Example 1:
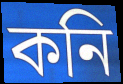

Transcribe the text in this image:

কনি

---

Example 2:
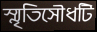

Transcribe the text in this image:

স্মৃতিসৌধটি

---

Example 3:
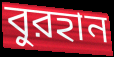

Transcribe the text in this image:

বুরহান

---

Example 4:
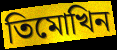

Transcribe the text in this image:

তিমোখিন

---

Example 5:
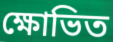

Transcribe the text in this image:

ক্ষোভিত